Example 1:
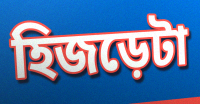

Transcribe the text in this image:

হিজড়েটা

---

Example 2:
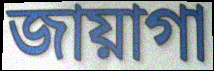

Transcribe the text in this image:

জায়াগা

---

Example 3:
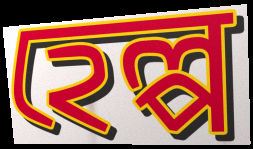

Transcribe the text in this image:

হেল্প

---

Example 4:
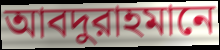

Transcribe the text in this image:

আবদুরাহমানে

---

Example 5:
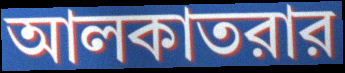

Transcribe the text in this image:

আলকাতরার